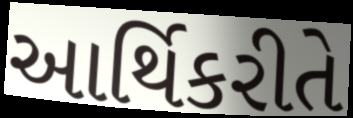
આર્થિકરીતે